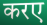
करए